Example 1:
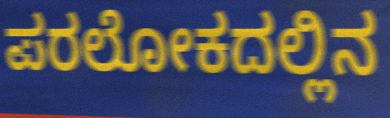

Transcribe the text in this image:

ಪರಲೋಕದಲ್ಲಿನ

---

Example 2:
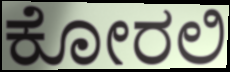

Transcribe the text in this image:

ಕೋರಲಿ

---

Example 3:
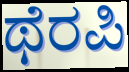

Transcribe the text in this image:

ಥೆರಪಿ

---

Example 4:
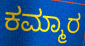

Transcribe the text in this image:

ಕಮ್ಮಾರ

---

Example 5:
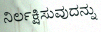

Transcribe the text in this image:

ನಿರ್ಲಕ್ಷಿಸುವುದನ್ನು